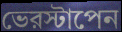
ভেরস্টাপেন